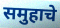
समुहाचे